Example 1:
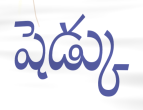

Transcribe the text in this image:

షెడ్కు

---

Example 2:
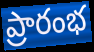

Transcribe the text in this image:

ప్రారంభ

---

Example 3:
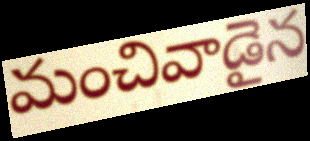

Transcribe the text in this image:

మంచివాడైన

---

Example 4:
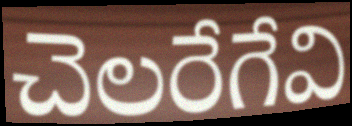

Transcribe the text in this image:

చెలరేగేవి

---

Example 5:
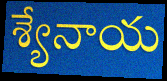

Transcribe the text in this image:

శ్యేనాయ